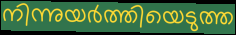
നിന്നുയർത്തിയെടുത്ത